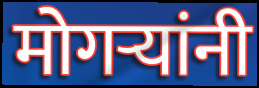
मोगऱ्यांनी